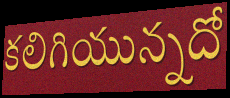
కలిగియున్నదో